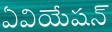
ఏవియేషన్